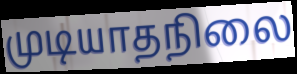
முடியாதநிலை